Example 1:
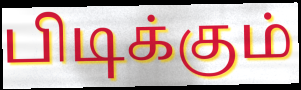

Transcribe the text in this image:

பிடிக்கும்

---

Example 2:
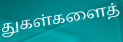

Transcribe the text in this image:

துகள்களைத்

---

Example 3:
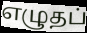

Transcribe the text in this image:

எழுதப்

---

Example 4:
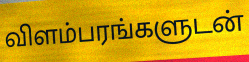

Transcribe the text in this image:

விளம்பரங்களுடன்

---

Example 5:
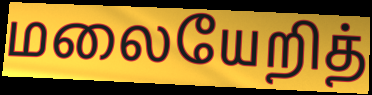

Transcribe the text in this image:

மலையேறித்